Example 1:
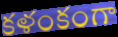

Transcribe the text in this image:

కళంకంగా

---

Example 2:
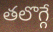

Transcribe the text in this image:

తలొగ్గే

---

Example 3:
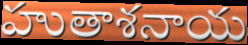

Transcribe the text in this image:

హుతాశనాయ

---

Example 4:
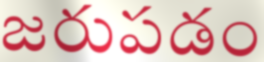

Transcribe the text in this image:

జరుపడం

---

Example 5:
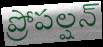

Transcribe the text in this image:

ప్రోపల్షన్